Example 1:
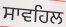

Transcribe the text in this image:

ਸਾਵਹਿਲ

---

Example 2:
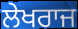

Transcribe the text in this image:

ਲੇਖਰਾਜ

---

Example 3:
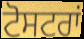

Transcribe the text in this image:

ਟੋਸਟਰਾਂ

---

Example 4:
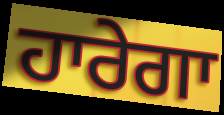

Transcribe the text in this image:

ਹਾਰੇਗਾ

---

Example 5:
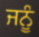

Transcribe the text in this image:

ਜਨੂੰ